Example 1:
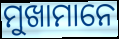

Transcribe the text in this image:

ମୁଖାମାନେ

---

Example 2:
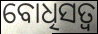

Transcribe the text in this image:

ବୋଧିସତ୍ବ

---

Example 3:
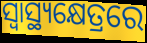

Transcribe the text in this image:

ସ୍ୱାସ୍ଥ୍ୟକ୍ଷେତ୍ରରେ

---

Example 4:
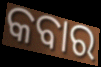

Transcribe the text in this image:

କବାର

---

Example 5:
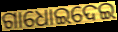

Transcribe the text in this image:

ଗାଧୋଇଦେଇ